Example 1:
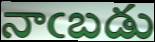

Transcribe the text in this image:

నాఁబడు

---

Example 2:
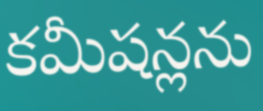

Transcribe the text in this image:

కమీషన్లను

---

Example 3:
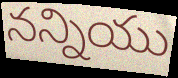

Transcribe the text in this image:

నన్నియు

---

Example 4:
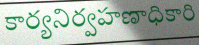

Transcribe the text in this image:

కార్యనిర్వహణాధికారి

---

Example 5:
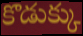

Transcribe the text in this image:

కొడుక్కు